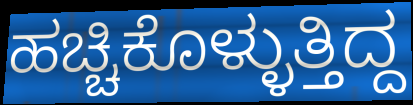
ಹಚ್ಚಿಕೊಳ್ಳುತ್ತಿದ್ದ